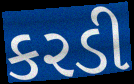
કરડી